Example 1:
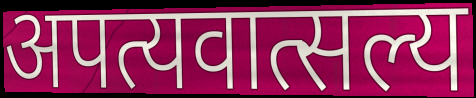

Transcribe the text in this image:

अपत्यवात्सल्य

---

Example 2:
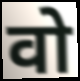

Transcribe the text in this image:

वो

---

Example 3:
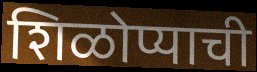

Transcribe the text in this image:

शिळोप्याची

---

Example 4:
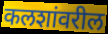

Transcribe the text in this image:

कलशांवरील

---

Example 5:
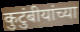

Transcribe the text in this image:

कुटुंबीयांच्या